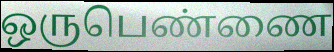
ஒருபெண்ணை